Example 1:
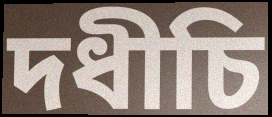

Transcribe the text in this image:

দধীচি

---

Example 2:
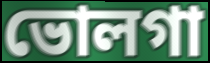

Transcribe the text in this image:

ভোলগা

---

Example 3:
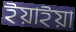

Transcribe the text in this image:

ইয়াইয়া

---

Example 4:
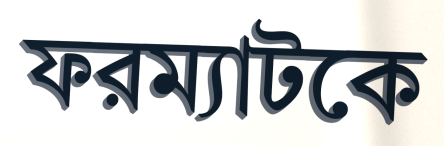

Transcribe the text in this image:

ফরম্যাটকে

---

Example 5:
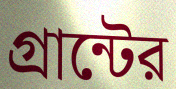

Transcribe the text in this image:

গ্রান্টের